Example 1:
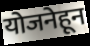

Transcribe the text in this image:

योजनेहून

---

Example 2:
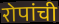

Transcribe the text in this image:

रोपांची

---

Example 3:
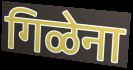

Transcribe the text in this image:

गिळेना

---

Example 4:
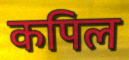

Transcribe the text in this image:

कपिल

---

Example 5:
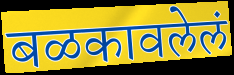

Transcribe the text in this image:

बळकावलेलं